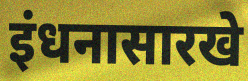
इंधनासारखे